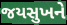
જયસુખને